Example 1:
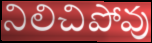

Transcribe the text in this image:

నిలిచిపోవు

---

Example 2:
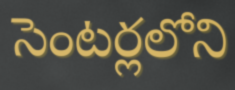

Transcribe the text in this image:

సెంటర్లలోని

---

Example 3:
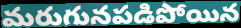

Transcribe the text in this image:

మరుగునపడిపోయిన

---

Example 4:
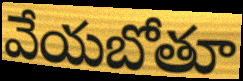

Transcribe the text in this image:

వేయబోతూ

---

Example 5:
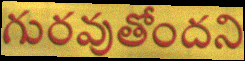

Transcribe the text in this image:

గురవుతోందని